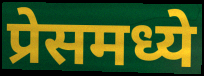
प्रेसमध्ये